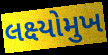
લક્ષ્યોમુખ